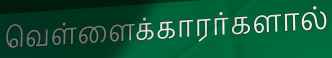
வெள்ளைக்காரர்களால்